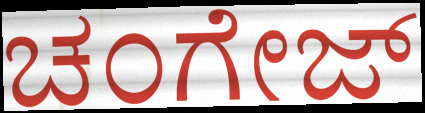
ಚಂಗೇಜ್